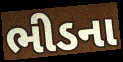
ભીડના